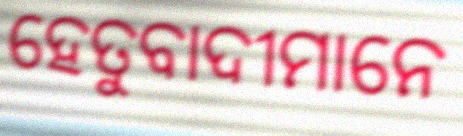
ହେତୁବାଦୀମାନେ